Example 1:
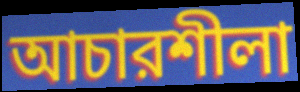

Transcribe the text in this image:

আচারশীলা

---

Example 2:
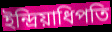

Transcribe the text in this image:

ইন্দ্রিয়াধিপতি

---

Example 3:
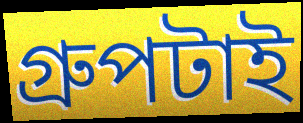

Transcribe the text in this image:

গ্রুপটাই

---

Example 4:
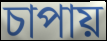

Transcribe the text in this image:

চাপায়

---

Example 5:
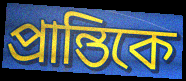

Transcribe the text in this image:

প্রান্তিকে